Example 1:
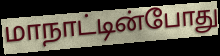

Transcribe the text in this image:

மாநாட்டின்போது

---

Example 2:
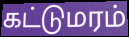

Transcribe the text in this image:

கட்டுமரம்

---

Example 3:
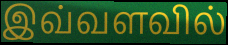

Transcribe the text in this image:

இவ்வளவில்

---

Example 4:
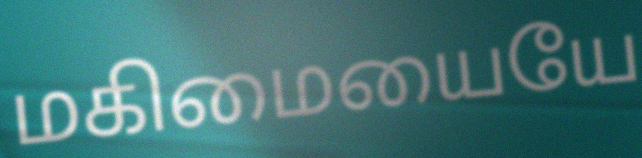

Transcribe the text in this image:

மகிமையையே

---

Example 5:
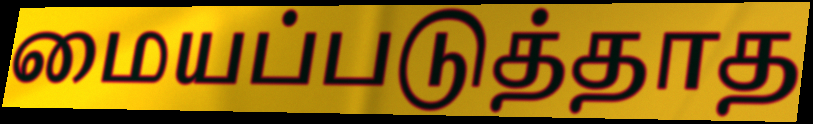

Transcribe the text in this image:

மையப்படுத்தாத